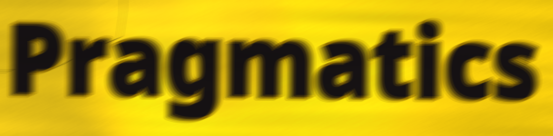
Pragmatics